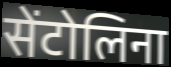
सेंटोलिना